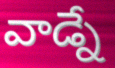
వాడ్నే